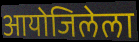
आयोजिलेला